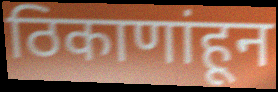
ठिकाणांहून